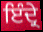
ਇੰਦ੍ਰੇ